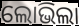
ଲୋଭିଲା